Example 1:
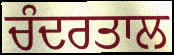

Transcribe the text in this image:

ਚੰਦਰਤਾਲ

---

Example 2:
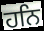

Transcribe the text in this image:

ਹਨਿ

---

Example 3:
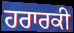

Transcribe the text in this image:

ਹਰਾਰਕੀ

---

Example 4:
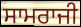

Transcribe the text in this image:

ਸਾਮਰਾਜੀ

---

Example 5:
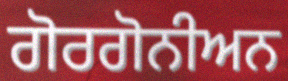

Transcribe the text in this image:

ਗੋਰਗੋਨੀਅਨ